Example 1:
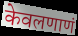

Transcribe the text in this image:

केवलणाणं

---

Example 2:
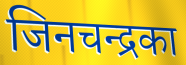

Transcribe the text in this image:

जिनचन्द्रका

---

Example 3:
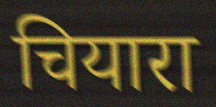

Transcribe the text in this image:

चियारा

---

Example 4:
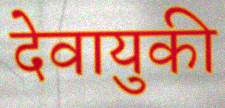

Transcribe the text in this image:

देवायुकी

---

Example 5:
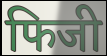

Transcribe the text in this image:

फिजी